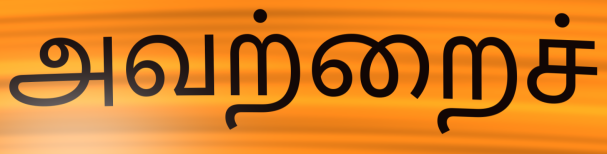
அவற்றைச்